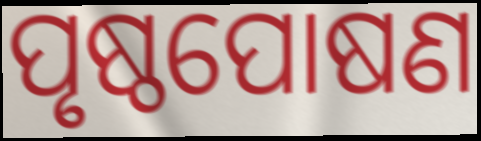
ପୃଷ୍ଠପୋଷଣ